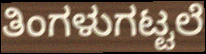
ತಿಂಗಳುಗಟ್ಟಲೆ